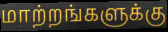
மாற்றங்களுக்கு